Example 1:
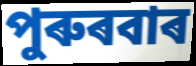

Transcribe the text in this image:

পুৰুৰবাৰ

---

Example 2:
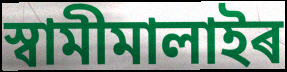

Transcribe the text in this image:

স্বামীমালাইৰ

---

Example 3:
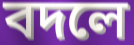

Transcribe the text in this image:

বদলে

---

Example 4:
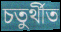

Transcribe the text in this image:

চতুৰ্থীত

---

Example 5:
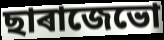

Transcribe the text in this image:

ছাৰাজেভো